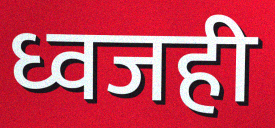
ध्वजही